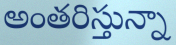
అంతరిస్తున్నా